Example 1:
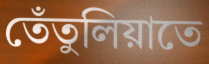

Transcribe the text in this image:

তেঁতুলিয়াতে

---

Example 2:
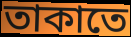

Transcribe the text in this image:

তাকাতে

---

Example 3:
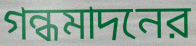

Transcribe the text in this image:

গন্ধমাদনের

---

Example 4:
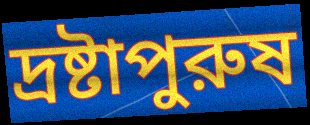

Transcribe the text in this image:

দ্রষ্টাপুরুষ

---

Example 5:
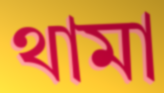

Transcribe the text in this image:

থামা